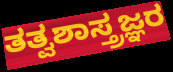
ತತ್ವಶಾಸ್ತ್ರಜ್ಞರ